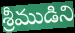
శ్రీముడిని